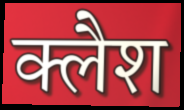
क्लैश